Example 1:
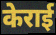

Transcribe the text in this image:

केराई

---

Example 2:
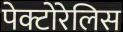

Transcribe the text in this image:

पेक्टोरेलिस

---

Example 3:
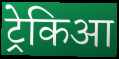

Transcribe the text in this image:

ट्रेकिआ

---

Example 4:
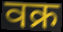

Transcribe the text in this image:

वक्र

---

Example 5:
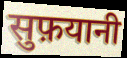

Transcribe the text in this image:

सुफ़यानी